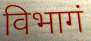
विभागं